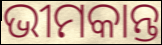
ଭୀମକାନ୍ତ